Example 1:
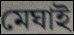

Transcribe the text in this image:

মেঘাই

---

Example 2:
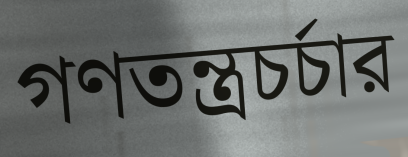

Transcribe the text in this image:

গণতন্ত্রচর্চার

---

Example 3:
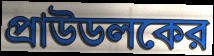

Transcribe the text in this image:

প্রাউডলকের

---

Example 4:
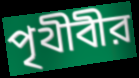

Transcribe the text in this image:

পৃথীবীর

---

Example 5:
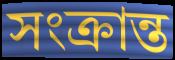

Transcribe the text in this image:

সংক্রান্ত